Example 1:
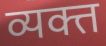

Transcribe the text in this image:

व्यक्त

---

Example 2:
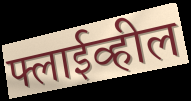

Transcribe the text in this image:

फ्लाईव्हील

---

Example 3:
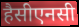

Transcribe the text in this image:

हैसीएनसी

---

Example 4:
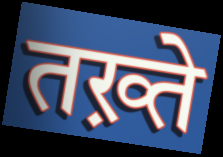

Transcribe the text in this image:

तख़्ते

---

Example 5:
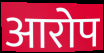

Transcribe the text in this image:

आरोप